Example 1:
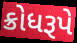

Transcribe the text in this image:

ક્રોધરૂપે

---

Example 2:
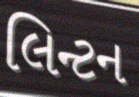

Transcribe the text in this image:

લિન્ટન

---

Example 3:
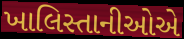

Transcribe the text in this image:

ખાલિસ્તાનીઓએ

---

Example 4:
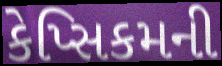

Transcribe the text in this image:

કેપ્સિકમની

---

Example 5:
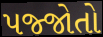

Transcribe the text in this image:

પજ્જોતો